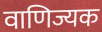
वाणिज्यक